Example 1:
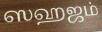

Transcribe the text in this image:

ஸஹஜம்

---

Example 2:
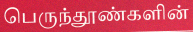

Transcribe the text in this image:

பெருந்தூண்களின்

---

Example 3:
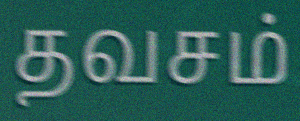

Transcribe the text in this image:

தவசம்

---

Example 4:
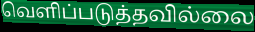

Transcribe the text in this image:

வெளிப்படுத்தவில்லை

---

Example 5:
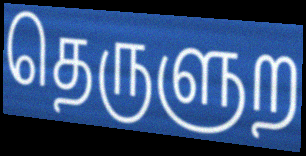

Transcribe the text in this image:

தெருளுற